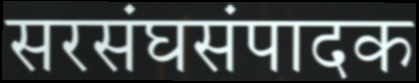
सरसंघसंपादक